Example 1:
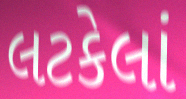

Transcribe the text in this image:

લટકેલાં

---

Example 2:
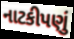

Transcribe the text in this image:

નાટકીપણું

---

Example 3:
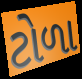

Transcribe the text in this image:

ટોળા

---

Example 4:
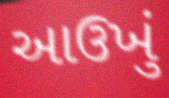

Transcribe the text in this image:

આઉખું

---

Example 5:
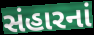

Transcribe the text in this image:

સંહારનાં